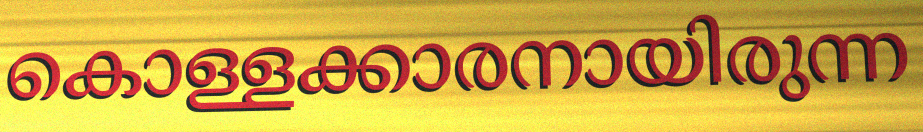
കൊള്ളക്കാരനായിരുന്ന